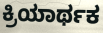
ಕ್ರಿಯಾರ್ಥಕ